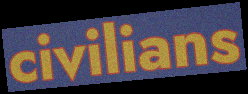
civilians